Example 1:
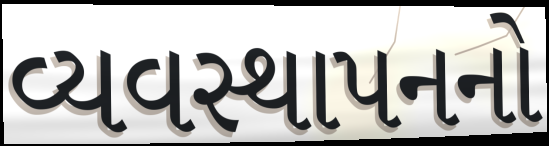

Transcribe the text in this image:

વ્યવસ્થાપનનો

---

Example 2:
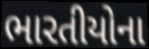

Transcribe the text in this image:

ભારતીયોના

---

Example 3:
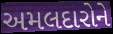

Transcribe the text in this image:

અમલદારોને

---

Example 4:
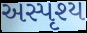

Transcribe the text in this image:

અસ્પૃશ્ય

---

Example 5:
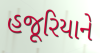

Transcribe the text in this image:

હજૂરિયાને